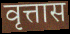
वृत्तास